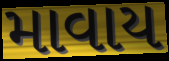
માવાય